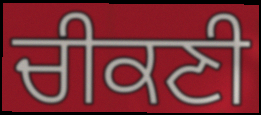
ਚੀਕਣੀ